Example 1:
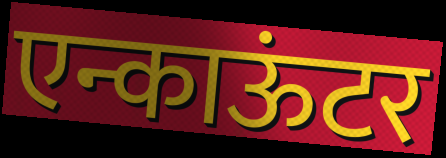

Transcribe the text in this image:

एन्काऊंटर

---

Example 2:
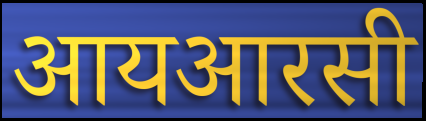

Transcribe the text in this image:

आयआरसी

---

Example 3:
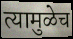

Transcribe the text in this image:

त्यामुळेच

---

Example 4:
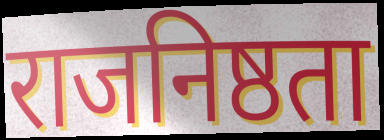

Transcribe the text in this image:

राजनिष्ठता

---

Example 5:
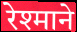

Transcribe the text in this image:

रेश्माने